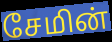
சேமின்